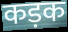
कड़क